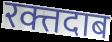
रक्तदाब